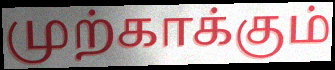
முற்காக்கும்